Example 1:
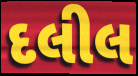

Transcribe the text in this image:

દલીલ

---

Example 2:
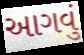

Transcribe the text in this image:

આગવું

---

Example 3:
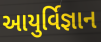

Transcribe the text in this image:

આયુર્વિજ્ઞાન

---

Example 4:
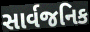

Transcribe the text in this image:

સાર્વજનિક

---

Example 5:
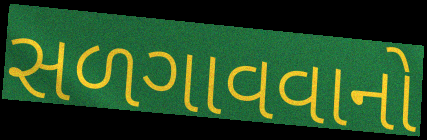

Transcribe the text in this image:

સળગાવવાનો